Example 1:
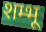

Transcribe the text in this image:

शम्भू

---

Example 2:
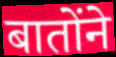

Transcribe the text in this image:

बातोंने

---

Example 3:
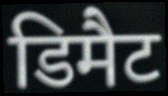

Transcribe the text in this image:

डिमैट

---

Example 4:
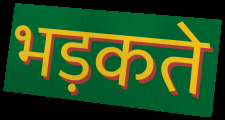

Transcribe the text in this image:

भड़कते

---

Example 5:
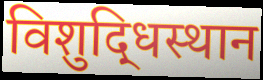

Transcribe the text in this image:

विशुद्धिस्थान